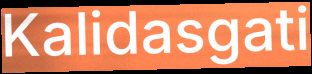
Kalidasgati